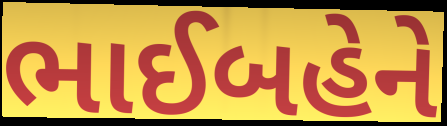
ભાઈબહેને